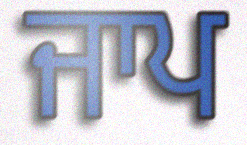
ਜਾਪ